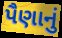
પૈણાનું